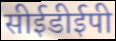
सीईडीईपी